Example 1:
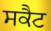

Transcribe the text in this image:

ਸਕੈਟ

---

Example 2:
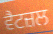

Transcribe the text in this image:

ਵੈਟਜ਼ਲ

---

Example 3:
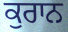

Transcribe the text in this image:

ਕੁਰਾਨ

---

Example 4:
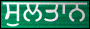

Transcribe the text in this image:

ਸੁਲਤਾਨ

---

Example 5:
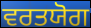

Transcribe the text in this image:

ਵਰਤਯੋਗ